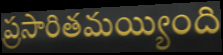
ప్రసారితమయ్యింది